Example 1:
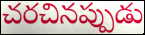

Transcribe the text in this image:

చరచినప్పుడు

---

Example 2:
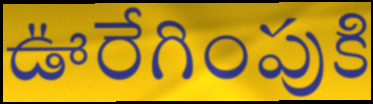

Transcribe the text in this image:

ఊరేగింపుకి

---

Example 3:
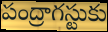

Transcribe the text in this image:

పంద్రాగస్టుకు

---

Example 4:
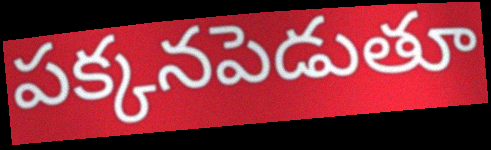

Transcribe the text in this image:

పక్కనపెడుతూ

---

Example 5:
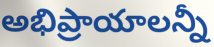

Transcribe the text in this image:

అభిప్రాయాలన్నీ